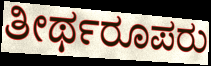
ತೀರ್ಥರೂಪರು